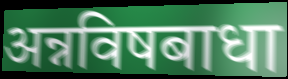
अन्नविषबाधा